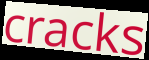
cracks